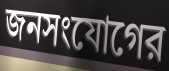
জনসংযোগের